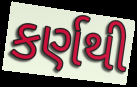
કર્ણથી